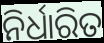
ନିର୍ଧାରିତ